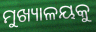
ମୁଖ୍ୟାଳୟକୁ